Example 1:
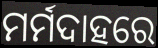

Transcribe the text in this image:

ମର୍ମଦାହରେ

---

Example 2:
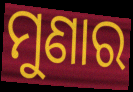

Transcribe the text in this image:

ମୁଣାର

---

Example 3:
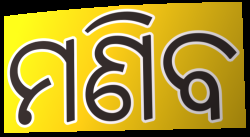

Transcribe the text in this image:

ମଣିବ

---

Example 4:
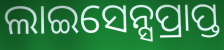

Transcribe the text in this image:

ଲାଇସେନ୍ସପ୍ରାପ୍ତ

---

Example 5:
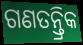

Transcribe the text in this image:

ଗଣତନ୍ତ୍ରିକ